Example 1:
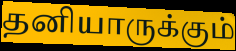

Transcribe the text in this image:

தனியாருக்கும்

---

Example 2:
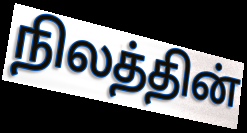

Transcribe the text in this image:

நிலத்தின்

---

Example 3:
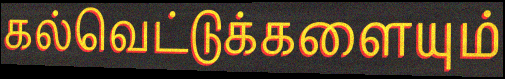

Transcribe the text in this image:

கல்வெட்டுக்களையும்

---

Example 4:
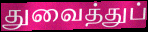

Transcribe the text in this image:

துவைத்துப்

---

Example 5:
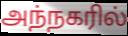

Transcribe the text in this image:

அந்நகரில்